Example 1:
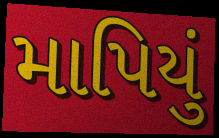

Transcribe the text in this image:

માપિયું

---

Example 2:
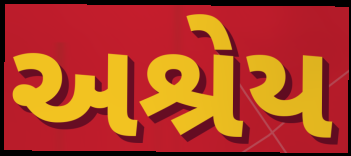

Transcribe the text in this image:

અશ્રેય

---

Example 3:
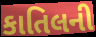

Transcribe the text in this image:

કાતિલની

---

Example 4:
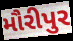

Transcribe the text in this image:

મૌરીપુર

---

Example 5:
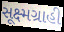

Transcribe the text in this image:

સૂક્ષ્મગ્રાહી